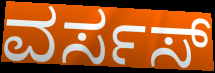
ವರ್ಸಸ್